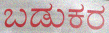
ಬಡುಕರ